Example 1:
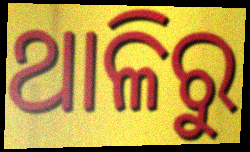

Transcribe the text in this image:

ଥାଳିରୁ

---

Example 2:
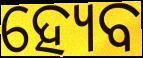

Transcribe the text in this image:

ହ୍ୟେବ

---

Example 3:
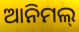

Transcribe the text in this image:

ଆନିମଲ୍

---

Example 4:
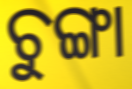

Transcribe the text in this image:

ଚୁଙ୍ଗା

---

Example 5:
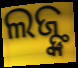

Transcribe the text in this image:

ଲଜ୍ଙ୍କ